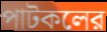
পাটকলের